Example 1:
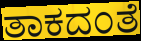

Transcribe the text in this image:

ತಾಕದಂತೆ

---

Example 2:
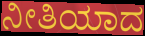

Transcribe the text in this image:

ನೀತಿಯಾದ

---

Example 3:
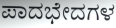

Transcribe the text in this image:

ಪಾದಭೇದಗಳ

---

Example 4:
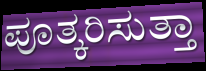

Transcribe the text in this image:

ಪೂತ್ಕರಿಸುತ್ತಾ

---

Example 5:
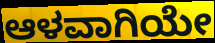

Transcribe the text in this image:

ಆಳವಾಗಿಯೇ